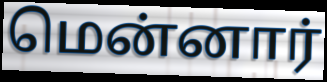
மென்னார்